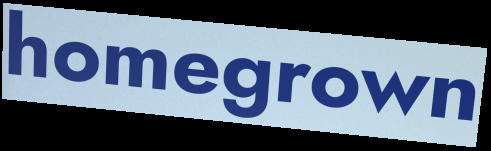
homegrown